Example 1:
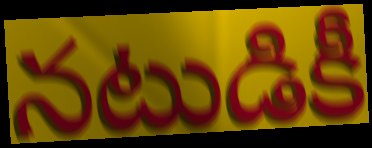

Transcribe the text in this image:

నటుడికీ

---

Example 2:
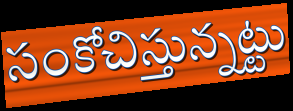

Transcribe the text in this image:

సంకోచిస్తున్నట్టు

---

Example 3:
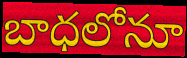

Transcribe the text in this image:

బాధలోనూ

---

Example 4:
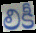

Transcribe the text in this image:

లికీ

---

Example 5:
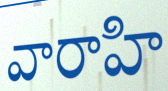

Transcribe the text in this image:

వారాహి